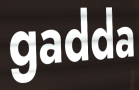
gadda